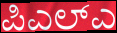
ಪಿಎಲ್ಎ